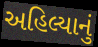
અહિલ્યાનું